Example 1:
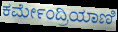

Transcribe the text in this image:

ಕರ್ಮೇಂದ್ರಿಯಾಣಿ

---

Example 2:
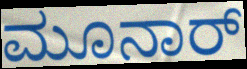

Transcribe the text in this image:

ಮೂನಾರ್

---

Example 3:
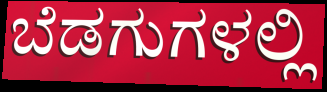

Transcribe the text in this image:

ಬೆಡಗುಗಳಲ್ಲಿ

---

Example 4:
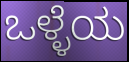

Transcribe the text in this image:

ಒಳ್ಳೆಯ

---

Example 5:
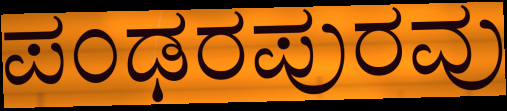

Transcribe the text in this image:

ಪಂಢರಪುರವು